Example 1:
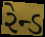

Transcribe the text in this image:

રેન્ડ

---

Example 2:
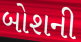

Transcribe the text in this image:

બોશની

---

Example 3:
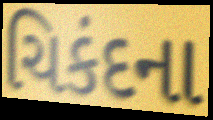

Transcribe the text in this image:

ચિકંદના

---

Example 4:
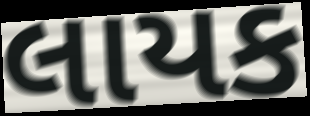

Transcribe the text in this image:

લાયક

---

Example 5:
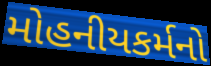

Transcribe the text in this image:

મોહનીયકર્મનો